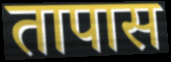
तापास